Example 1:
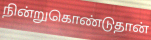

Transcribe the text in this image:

நின்றுகொண்டுதான்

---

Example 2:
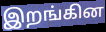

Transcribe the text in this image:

இறங்கின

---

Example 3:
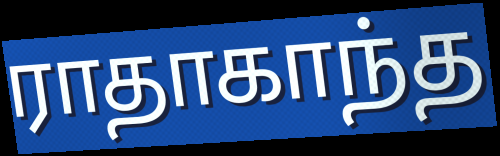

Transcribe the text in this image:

ராதாகாந்த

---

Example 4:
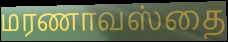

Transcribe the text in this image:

மரணாவஸ்தை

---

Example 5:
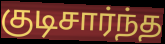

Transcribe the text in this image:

குடிசார்ந்த